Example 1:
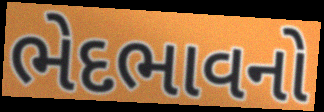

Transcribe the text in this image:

ભેદભાવનો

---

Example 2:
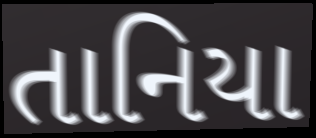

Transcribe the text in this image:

તાનિયા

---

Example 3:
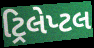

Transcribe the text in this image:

ટ્રિલેપ્ટલ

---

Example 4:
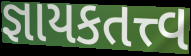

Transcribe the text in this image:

જ્ઞાયકતત્ત્વ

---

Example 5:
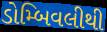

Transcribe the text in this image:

ડોમ્બિવલીથી